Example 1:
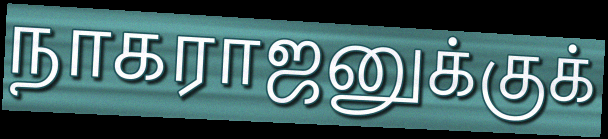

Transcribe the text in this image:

நாகராஜனுக்குக்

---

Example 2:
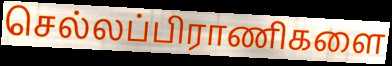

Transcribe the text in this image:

செல்லப்பிராணிகளை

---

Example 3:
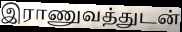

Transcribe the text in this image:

இராணுவத்துடன்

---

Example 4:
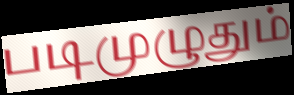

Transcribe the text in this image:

படிமுழுதும்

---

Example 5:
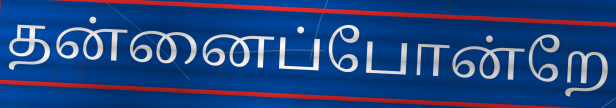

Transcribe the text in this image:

தன்னைப்போன்றே